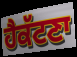
ਹੈਕੱਟਣਾ